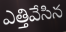
ఎత్తివేసిన